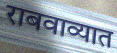
राबवाव्यात